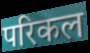
परिकल